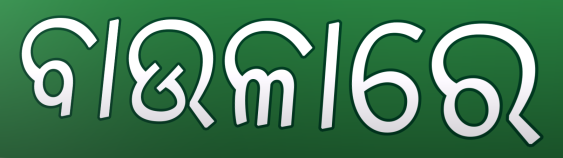
ବାଉଳାରେ